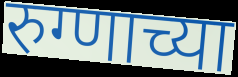
रुग्णाच्या